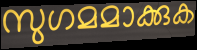
സുഗമമാക്കുക